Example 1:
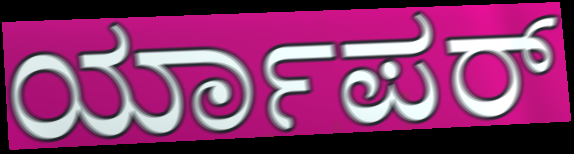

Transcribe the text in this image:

ರ್ಯಾಪರ್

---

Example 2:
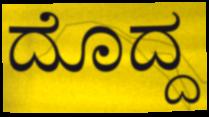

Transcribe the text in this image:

ದೊದ್ದ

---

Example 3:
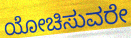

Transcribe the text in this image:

ಯೋಚಿಸುವರೇ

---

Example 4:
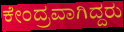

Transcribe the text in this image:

ಕೇಂದ್ರವಾಗಿದ್ದರು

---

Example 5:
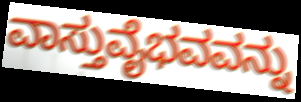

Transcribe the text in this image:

ವಾಸ್ತುವೈಭವವನ್ನು